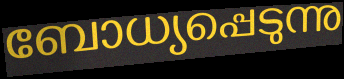
ബോധ്യപ്പെടുന്നു